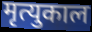
मृत्युकाल